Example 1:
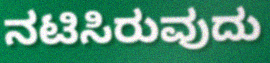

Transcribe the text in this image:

ನಟಿಸಿರುವುದು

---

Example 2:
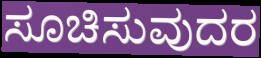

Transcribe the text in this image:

ಸೂಚಿಸುವುದರ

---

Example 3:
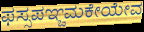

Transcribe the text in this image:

ಫಸ್ಸಪಞ್ಚಮಕೇಯೇವ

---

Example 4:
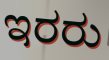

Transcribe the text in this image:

ಇರರು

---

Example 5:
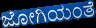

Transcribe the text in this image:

ಜೋಗಿಯಂತೆ